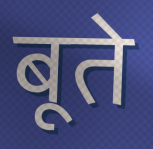
बूते